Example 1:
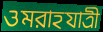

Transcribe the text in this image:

ওমরাহযাত্রী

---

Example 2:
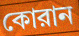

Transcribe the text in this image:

কোরান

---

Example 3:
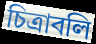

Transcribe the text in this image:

চিত্রাবলি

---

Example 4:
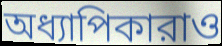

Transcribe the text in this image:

অধ্যাপিকারাও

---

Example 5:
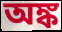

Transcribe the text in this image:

অঙ্ক